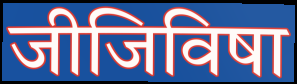
जीजिविषा